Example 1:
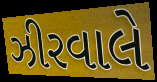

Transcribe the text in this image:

ઝીરવાલે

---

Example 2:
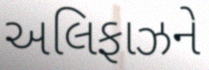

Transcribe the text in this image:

અલિફાઝને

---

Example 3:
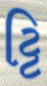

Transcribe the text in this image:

ટ્ટિ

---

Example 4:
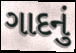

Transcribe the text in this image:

ગાદનું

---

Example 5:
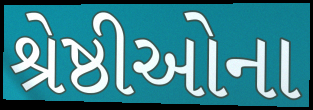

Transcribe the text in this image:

શ્રેષ્ઠીઓના